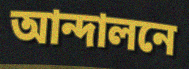
আন্দালনে